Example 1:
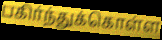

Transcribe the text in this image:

பகிர்ந்துக்கொள்ள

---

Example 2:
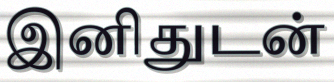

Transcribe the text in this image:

இனிதுடன்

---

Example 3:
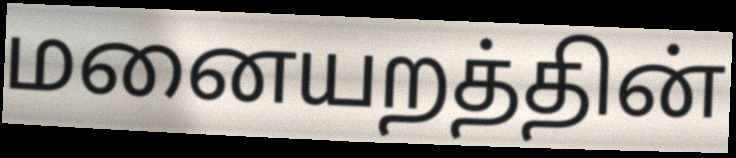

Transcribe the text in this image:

மனையறத்தின்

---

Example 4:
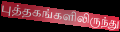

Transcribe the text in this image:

புத்தகங்களிலிருந்து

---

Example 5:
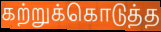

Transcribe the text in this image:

கற்றுக்கொடுத்த